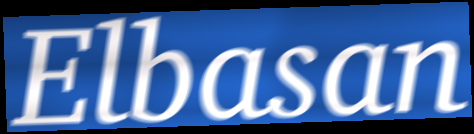
Elbasan